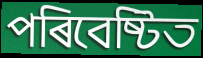
পৰিবেষ্টিত